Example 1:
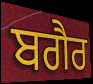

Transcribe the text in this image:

ਬਗੈਰ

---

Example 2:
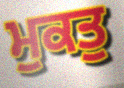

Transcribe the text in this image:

ਮੁਕਤੁ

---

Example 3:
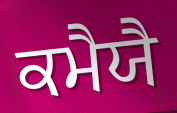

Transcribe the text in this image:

ਕਮੈਯੈ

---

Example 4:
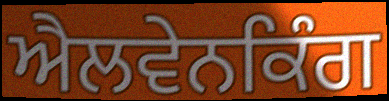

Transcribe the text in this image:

ਐਲਵੇਨਕਿੰਗ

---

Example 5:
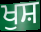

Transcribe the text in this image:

ਖੁਸ਼